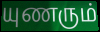
யுணரும்